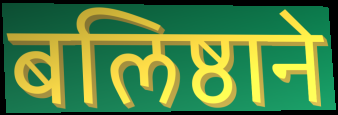
बलिष्ठाने